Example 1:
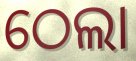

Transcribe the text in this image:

ଠେଲା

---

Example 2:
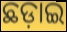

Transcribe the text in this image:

ଛଡ଼ାଇ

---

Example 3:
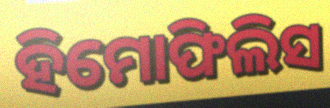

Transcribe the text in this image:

ହିମୋଫିଲିସ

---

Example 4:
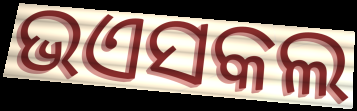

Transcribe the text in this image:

ଭଏସକଲ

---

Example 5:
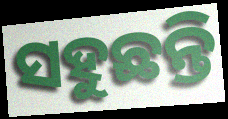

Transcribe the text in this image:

ସହୁଛନ୍ତି